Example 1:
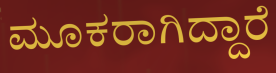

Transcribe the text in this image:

ಮೂಕರಾಗಿದ್ದಾರೆ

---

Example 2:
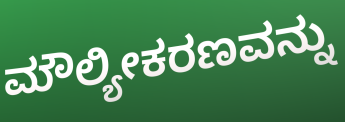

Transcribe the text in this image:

ಮೌಲ್ಯೀಕರಣವನ್ನು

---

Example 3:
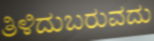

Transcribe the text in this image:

ತಿಳಿದುಬರುವದು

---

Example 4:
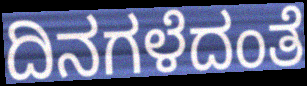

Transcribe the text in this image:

ದಿನಗಳೆದಂತೆ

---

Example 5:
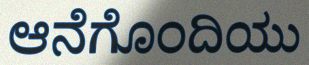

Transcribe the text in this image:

ಆನೆಗೊಂದಿಯು